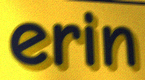
erin